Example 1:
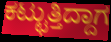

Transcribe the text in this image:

ಕಟ್ಟುತ್ತಿದ್ದಾಗ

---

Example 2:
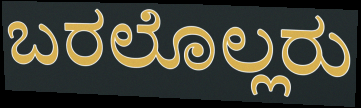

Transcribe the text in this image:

ಬರಲೊಲ್ಲರು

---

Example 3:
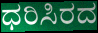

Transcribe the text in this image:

ಧರಿಸಿರದ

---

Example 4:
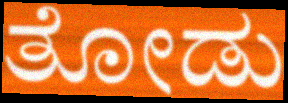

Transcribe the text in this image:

ತೋಡು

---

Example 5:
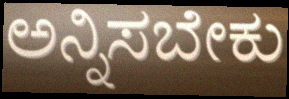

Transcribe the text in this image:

ಅನ್ನಿಸಬೇಕು